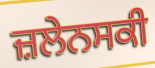
ਜ਼ਲੇਨਸਕੀ